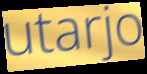
utarjo